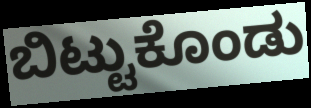
ಬಿಟ್ಟುಕೊಂಡು